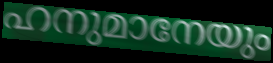
ഹനുമാനേയും